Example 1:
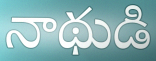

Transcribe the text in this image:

నాథుడి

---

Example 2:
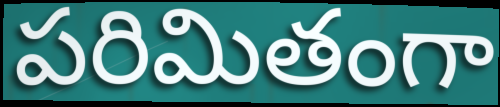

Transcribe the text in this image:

పరిమితంగా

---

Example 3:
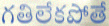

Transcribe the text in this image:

గతిలేకపోతే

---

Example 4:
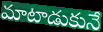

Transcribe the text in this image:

మాటాడుకునే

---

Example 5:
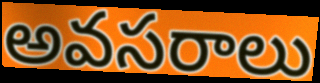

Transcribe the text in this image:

అవసరాలు